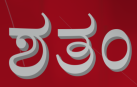
ಶತಂ